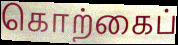
கொற்கைப்